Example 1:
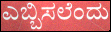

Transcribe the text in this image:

ಎಬ್ಬಿಸಲೆಂದು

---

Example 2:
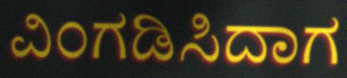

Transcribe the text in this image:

ವಿಂಗಡಿಸಿದಾಗ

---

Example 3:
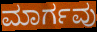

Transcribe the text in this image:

ಮಾರ್ಗವು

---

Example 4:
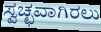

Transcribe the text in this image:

ಸ್ವಚ್ಛವಾಗಿರಲು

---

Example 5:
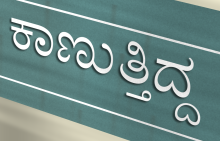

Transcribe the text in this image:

ಕಾಣುತ್ತಿದ್ದ